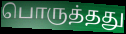
பொருத்தது